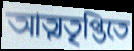
আত্মতৃপ্তিতে